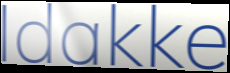
Idakke